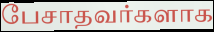
பேசாதவர்களாக